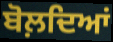
ਬੋਲ਼ਦਿਆਂ